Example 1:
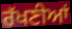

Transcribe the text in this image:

ਰੱਖਣੀਆਂ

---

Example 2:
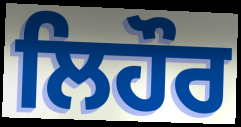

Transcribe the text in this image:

ਲਿਹੌਰ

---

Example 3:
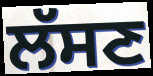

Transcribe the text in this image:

ਲੱਸਣ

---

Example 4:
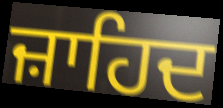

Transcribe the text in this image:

ਜ਼ਾਹਿਦ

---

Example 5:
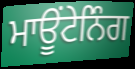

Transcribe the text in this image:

ਮਾਊਂਟੇਨਿੰਗ